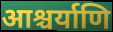
आश्चर्याणि